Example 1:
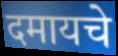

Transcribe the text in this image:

दमायचे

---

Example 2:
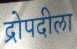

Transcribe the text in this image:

द्रोपदीला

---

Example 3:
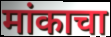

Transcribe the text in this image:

मांकाचा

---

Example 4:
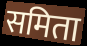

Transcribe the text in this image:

समिता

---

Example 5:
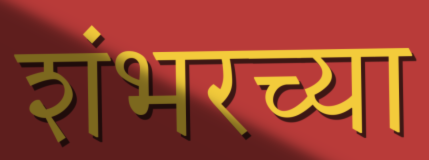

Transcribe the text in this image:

शंभरच्या